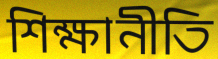
শিক্ষানীতি